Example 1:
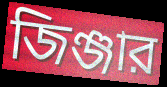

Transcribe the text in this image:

জিঞ্জার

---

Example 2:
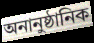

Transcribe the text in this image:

অনানুষ্ঠানিক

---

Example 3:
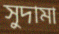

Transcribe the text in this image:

সুদামা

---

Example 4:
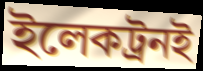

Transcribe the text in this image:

ইলেকট্রনই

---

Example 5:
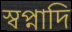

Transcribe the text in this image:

স্বপ্নাদি